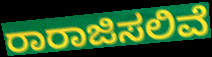
ರಾರಾಜಿಸಲಿವೆ